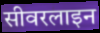
सीवरलाइन